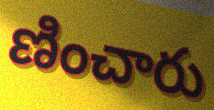
ణించారు